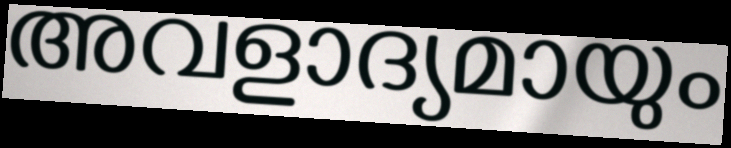
അവളാദ്യമായും